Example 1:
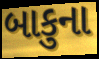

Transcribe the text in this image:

બાકુના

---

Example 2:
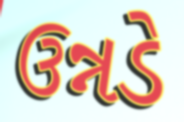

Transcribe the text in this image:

ઉન્નડે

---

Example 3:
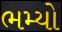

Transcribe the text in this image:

ભમ્યો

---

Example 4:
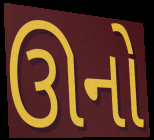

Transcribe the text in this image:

ઊનો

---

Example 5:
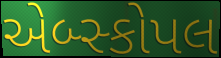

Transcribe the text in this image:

એબ્સ્કોપલ